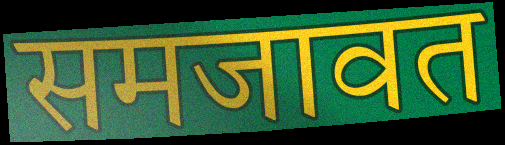
समजावत